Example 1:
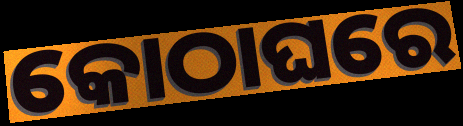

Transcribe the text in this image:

କୋଠାଘରେ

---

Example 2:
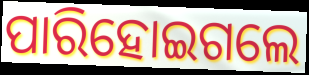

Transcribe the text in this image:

ପାରିହୋଇଗଲେ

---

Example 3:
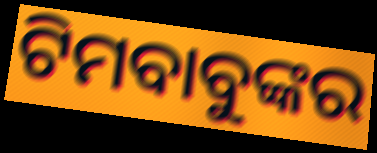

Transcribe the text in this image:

ଟିମବାବୁଙ୍କର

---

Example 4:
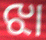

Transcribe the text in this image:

ଝା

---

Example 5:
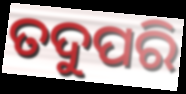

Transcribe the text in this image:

ତଦୁପରି